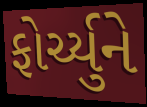
ફોર્ચ્યુને